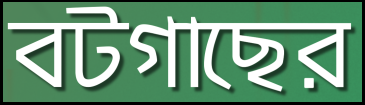
বটগাছের